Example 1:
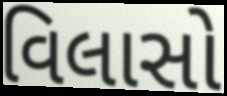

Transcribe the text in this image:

વિલાસો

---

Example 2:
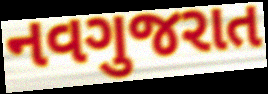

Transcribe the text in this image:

નવગુજરાત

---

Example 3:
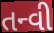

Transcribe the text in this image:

તન્વી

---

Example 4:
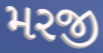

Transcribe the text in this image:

મરજી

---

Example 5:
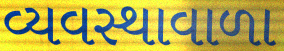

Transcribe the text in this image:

વ્યવસ્થાવાળા